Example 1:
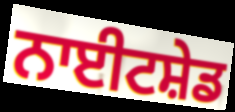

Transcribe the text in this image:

ਨਾਈਟਸ਼ੇਡ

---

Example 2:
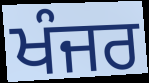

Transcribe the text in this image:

ਖੰਜਰ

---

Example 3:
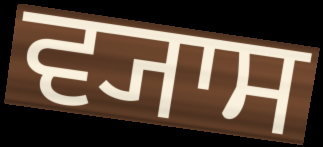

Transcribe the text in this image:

ਵ੍ਯਾਸ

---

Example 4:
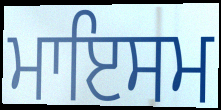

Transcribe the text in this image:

ਮਾਇਸਮ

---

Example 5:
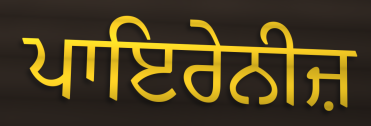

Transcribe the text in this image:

ਪਾਇਰੇਨੀਜ਼